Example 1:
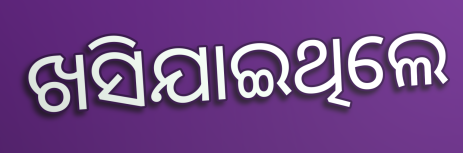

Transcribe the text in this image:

ଖସିଯାଇଥିଲେ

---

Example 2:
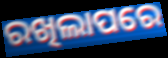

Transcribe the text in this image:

ରଖିଲାପରେ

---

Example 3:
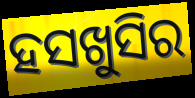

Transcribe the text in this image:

ହସଖୁସିର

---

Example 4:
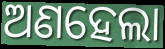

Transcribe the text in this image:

ଅଣହେଲା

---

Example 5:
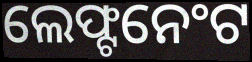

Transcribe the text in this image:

ଲେଫ୍ଟନେଂଟ